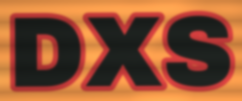
DXS